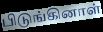
பிடுங்கினாள்